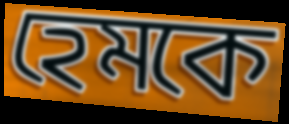
হেমকে